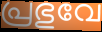
പ്രഭുവേ